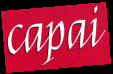
capai